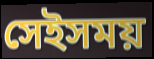
সেইসময়